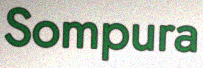
Sompura